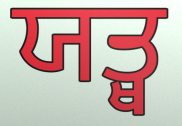
ਯਤ੍ਥ